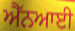
ਐੱਨਆਈ